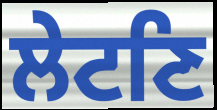
ਲੇਟਣਿ